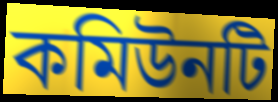
কমিউনটি